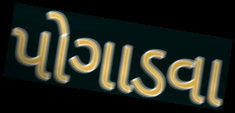
પોગાડવા